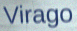
Virago